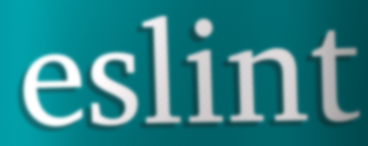
eslint